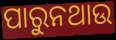
ପାରୁନଥାଉ